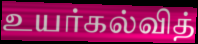
உயர்கல்வித்